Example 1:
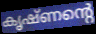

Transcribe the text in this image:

കൃഷ്ണന്റെ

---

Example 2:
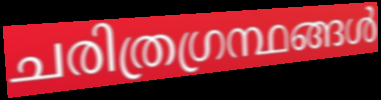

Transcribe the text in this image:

ചരിത്രഗ്രന്ഥങ്ങൾ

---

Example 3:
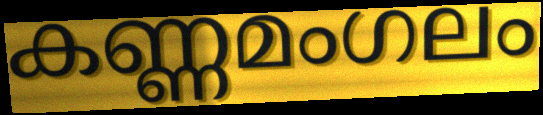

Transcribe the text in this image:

കണ്ണമംഗലം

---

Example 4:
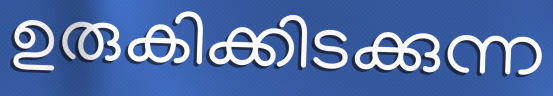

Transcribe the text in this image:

ഉരുകിക്കിടക്കുന്ന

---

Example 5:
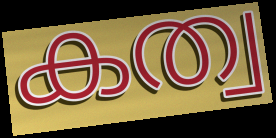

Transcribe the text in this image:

കത്വ